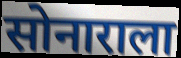
सोनाराला